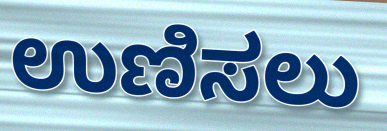
ಉಣಿಸಲು